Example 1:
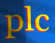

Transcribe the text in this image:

plc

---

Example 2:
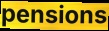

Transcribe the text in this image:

pensions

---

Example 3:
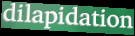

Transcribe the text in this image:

dilapidation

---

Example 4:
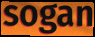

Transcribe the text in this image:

sogan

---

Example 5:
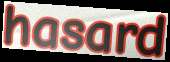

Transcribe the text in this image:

hasard